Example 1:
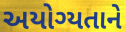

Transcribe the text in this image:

અયોગ્યતાને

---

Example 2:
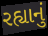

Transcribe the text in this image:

રહ્યાનું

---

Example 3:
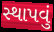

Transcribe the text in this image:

સ્થાપવું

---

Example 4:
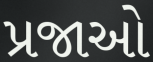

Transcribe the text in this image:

પ્રજાઓ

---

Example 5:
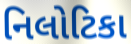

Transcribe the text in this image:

નિલોટિકા